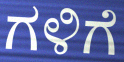
ಗಳಿಗೆ